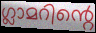
ഗ്ലാമറിന്റെ